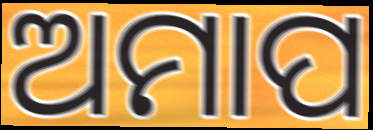
ଅମାପ